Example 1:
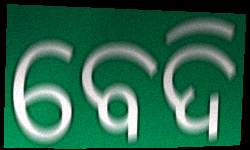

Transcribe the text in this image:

ବେଦି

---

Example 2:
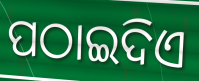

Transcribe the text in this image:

ପଠାଇଦିଏ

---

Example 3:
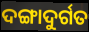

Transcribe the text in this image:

ଦଙ୍ଗାଦୁର୍ଗତ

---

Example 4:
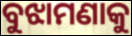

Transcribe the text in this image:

ବୁଝାମଣାକୁ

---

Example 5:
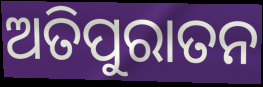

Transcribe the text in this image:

ଅତିପୁରାତନ